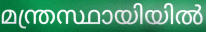
മന്ത്രസ്ഥായിയിൽ